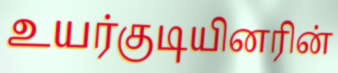
உயர்குடியினரின்